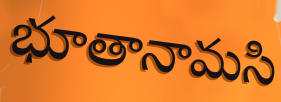
భూతానామసి